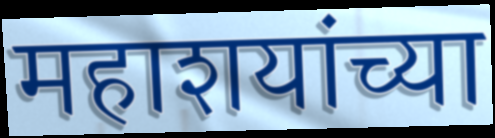
महाशयांच्या